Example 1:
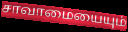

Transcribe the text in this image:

சாவாமையையும்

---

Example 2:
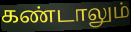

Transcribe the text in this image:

கண்டாலும்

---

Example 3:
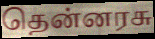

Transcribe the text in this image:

தென்னரசு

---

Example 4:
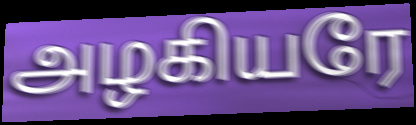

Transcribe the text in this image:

அழகியரே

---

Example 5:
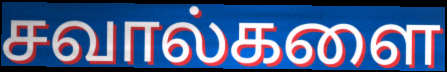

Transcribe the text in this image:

சவால்களை